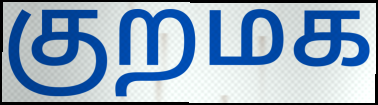
குறமக